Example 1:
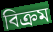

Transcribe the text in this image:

বিক্ৰম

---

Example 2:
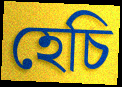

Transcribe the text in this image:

হেচি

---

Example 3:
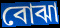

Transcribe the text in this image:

বোঝা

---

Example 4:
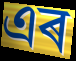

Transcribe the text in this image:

এৰ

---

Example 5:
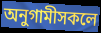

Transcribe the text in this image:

অনুগামীসকলে